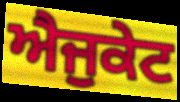
ਐਜੁਕੇਟ